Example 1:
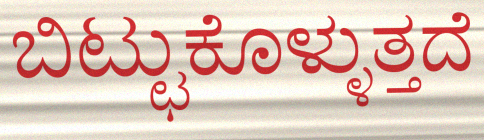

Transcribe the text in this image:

ಬಿಟ್ಟುಕೊಳ್ಳುತ್ತದೆ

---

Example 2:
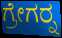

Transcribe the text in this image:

ಗ್ರೇಗರ್‍ನ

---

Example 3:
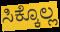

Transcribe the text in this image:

ಸಿಕ್ಕೊಲ್ಲ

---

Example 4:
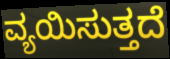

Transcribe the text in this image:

ವ್ಯಯಿಸುತ್ತದೆ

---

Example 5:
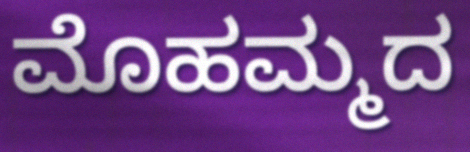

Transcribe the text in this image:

ಮೊಹಮ್ಮದ